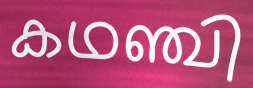
കഥഞ്ചി